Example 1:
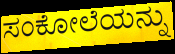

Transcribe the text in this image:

ಸಂಕೋಲೆಯನ್ನು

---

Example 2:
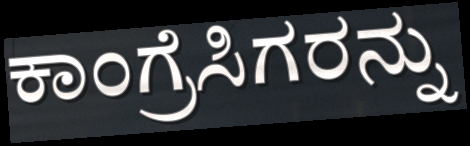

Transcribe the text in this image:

ಕಾಂಗ್ರೆಸಿಗರನ್ನು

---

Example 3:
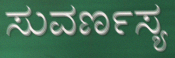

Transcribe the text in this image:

ಸುವರ್ಣಸ್ಯ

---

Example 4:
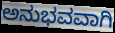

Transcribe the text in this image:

ಅನುಭವವಾಗಿ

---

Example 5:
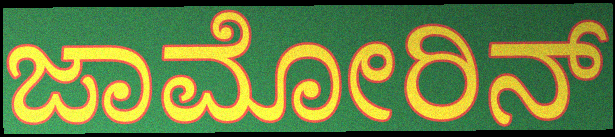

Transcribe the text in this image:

ಜಾಮೋರಿನ್